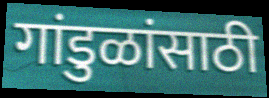
गांडुळांसाठी